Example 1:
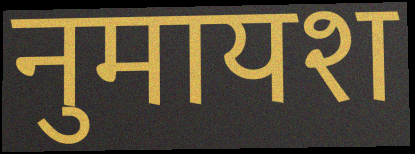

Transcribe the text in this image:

नुमायश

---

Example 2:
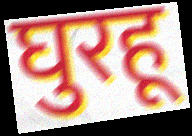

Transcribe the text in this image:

घुरहू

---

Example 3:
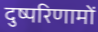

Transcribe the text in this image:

दुष्परिणामों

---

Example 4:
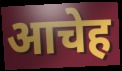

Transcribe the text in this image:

आचेह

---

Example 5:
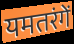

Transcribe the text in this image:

यमतरंगें